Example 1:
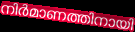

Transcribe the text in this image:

നിർമാണത്തിനായി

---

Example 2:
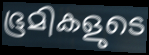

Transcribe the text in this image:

ഭൂമികളുടെ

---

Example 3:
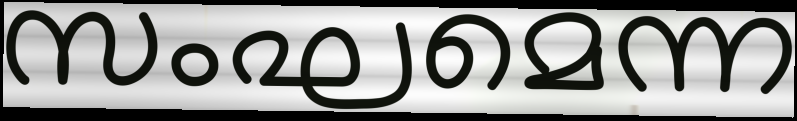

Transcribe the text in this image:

സംഘമെന്ന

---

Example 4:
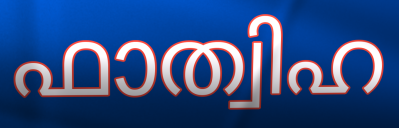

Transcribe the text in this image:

ഫാത്വിഹ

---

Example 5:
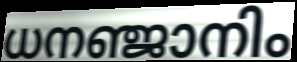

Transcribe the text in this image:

ധനഞ്ജാനിം